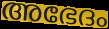
അഭേദം